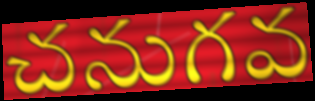
చనుగవ